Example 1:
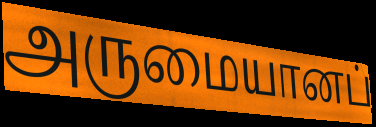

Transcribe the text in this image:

அருமையானப்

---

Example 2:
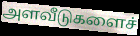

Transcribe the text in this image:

அளவீடுகளைச்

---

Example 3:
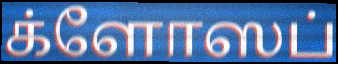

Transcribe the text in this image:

க்ளோஸப்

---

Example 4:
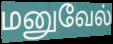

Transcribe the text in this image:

மனுவேல்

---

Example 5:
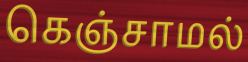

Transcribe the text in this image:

கெஞ்சாமல்